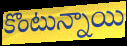
కొంటున్నాయి